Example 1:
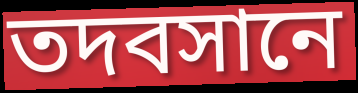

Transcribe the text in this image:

তদবসানে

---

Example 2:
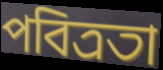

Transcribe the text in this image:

পবিত্রতা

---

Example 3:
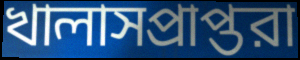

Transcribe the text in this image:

খালাসপ্রাপ্তরা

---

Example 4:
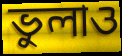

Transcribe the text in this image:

ভুলাও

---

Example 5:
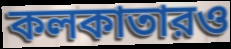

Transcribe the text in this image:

কলকাতারও